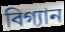
বিগ্যান